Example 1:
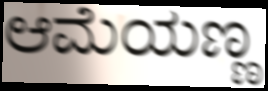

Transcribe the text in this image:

ಆಮೆಯಣ್ಣ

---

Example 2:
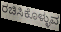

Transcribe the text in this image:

ರಚಿಸಿಕೊಳ್ಳುವ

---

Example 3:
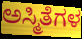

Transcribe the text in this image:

ಅಸ್ಮಿತೆಗಳ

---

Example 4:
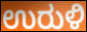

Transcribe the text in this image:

ಉರುಳಿ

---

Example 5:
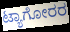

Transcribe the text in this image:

ಟ್ಯಾಗೋರರ